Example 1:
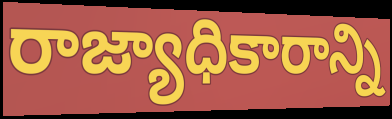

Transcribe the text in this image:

రాజ్యాధికారాన్ని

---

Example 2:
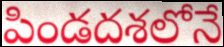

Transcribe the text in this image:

పిండదశలోనే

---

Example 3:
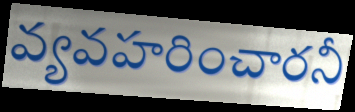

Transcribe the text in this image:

వ్యవహరించారనీ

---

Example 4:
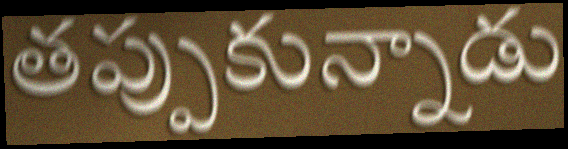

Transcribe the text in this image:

తప్పుకున్నాడు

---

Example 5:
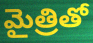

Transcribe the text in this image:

మైత్రితో